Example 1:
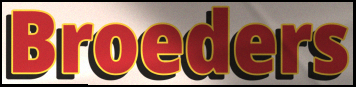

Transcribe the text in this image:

Broeders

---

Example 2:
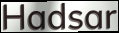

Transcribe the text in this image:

Hadsar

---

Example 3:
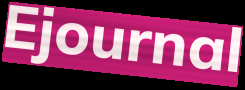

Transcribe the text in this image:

Ejournal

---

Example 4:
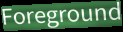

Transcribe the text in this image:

Foreground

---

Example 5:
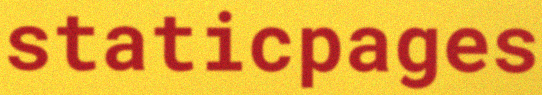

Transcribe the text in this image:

staticpages